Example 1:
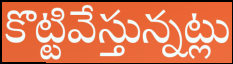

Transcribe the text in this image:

కొట్టివేస్తున్నట్లు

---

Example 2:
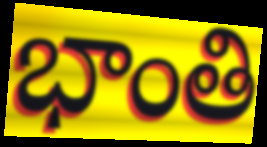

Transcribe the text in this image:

భాంతి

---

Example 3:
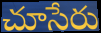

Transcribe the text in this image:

చూసేరు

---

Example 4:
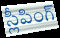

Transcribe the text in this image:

స్లీపింగ్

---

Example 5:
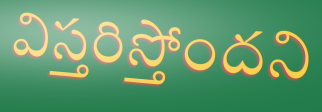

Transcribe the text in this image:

విస్తరిస్తోందని